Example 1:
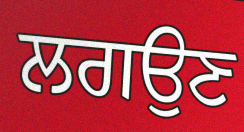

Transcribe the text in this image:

ਲਗਉਣ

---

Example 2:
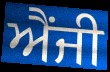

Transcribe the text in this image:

ਐਂਜੀ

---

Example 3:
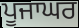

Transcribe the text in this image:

ਪੂਜਾਘਰ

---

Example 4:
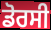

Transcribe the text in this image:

ਡੋਰਸੀ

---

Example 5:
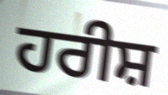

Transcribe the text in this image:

ਹਰੀਸ਼